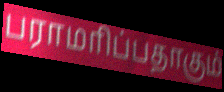
பராமரிப்பதாகும்